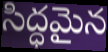
సిద్ధమైన